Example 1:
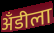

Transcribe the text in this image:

अँडीला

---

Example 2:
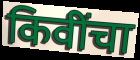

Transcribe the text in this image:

किवींचा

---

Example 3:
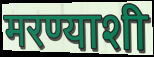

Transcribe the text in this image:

मरण्याशी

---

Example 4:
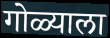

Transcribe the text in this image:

गोळ्याला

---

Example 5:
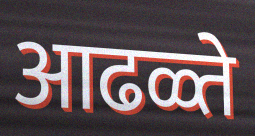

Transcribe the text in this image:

आढळ्ते